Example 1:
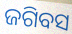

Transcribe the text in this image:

ଜଗିବସ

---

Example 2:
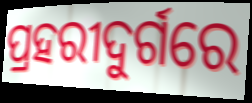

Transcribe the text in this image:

ପ୍ରହରୀଦୁର୍ଗରେ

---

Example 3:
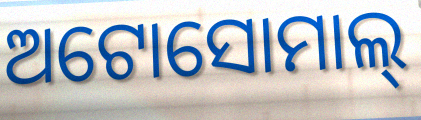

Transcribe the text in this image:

ଅଟୋସୋମାଲ୍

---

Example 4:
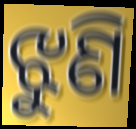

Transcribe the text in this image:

ଝୁଣି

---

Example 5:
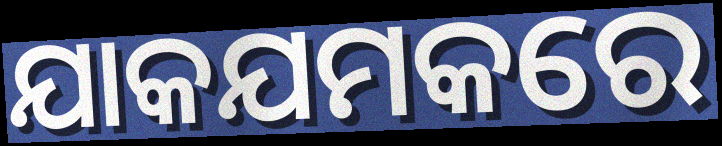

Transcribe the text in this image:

ଯାକଯମକରେ